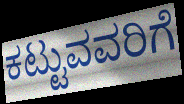
ಕಟ್ಟುವವರಿಗೆ